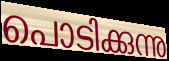
പൊടിക്കുന്നു